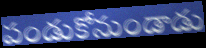
పండుకోనుండాడు